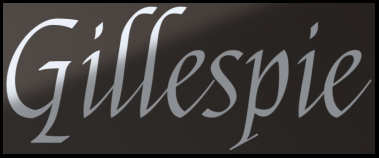
Gillespie